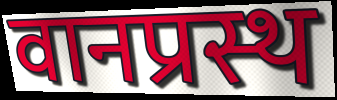
वानप्रस्थ